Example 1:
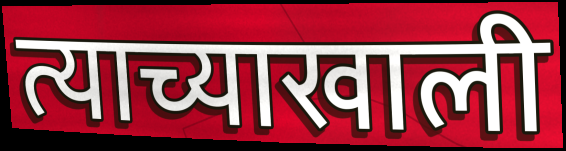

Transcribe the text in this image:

त्याच्याखाली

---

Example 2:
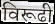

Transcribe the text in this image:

विरूढी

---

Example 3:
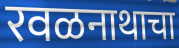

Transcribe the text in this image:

रवळनाथाचा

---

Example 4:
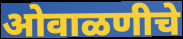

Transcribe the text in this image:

ओवाळणीचे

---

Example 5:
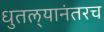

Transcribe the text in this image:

धुतल्यानंतरच